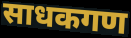
साधकगण